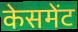
केसमेंट